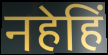
नहेहिं